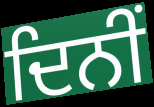
ਦਿਨੀਂ